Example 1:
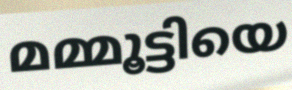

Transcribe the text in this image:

മമ്മൂട്ടിയെ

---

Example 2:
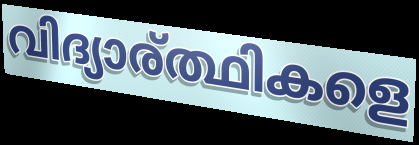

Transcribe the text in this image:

വിദ്യാര്ത്ഥികളെ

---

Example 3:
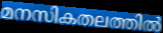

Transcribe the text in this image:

മനസികതലത്തിൽ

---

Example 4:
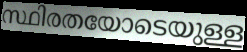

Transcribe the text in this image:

സ്ഥിരതയോടെയുള്ള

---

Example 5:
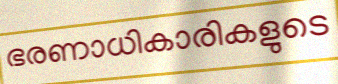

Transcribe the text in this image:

ഭരണാധികാരികളുടെ